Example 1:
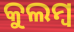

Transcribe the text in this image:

କୁଲମ୍ବ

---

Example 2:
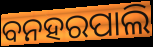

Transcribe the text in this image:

ବନହରପାଲି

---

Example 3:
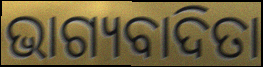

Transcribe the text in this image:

ଭାଗ୍ୟବାଦିତା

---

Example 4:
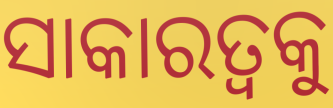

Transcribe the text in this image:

ସାକାରତ୍ଵକୁ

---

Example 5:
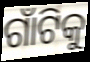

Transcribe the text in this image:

ଗାଁଟିକୁ